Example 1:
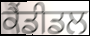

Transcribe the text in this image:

ਕੈਂਡੀਡਲ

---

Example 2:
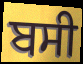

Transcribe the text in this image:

ਬਸੀ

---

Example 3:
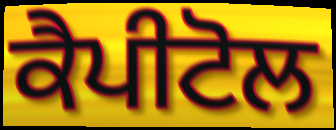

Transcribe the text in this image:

ਕੈਪੀਟੋਲ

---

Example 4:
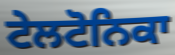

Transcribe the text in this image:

ਟੇਲਟੋਨਿਕਾ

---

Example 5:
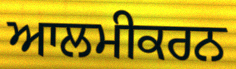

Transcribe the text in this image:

ਆਲਮੀਕਰਨ